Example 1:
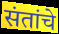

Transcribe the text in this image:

संतांचे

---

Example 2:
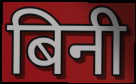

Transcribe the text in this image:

बिनी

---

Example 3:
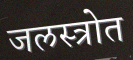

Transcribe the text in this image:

जलस्त्रोत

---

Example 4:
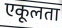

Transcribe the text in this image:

एकूलता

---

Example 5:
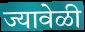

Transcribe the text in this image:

ज्यावेळी